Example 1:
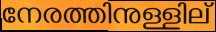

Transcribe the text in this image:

നേരത്തിനുള്ളില്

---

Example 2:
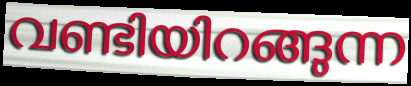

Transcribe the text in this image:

വണ്ടിയിറങ്ങുന്ന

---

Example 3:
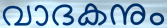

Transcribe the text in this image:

വാദകനും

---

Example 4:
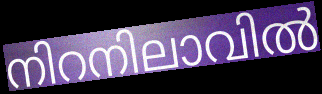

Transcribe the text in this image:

നിറനിലാവിൽ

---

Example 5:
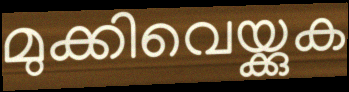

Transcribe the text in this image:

മുക്കിവെയ്ക്കുക